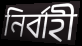
নির্বাহী